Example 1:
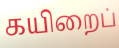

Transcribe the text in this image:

கயிறைப்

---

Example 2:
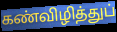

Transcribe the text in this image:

கண்விழித்துப்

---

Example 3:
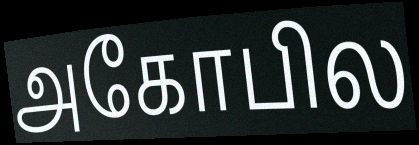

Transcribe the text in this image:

அகோபில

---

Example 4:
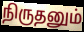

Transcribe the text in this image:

நிருதனும்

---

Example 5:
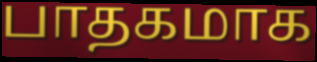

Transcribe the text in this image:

பாதகமாக